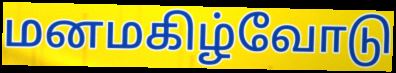
மனமகிழ்வோடு